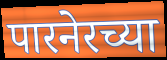
पारनेरच्या